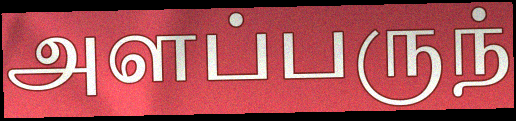
அளப்பருந்